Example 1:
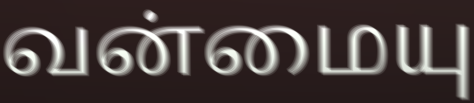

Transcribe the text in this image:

வன்மையு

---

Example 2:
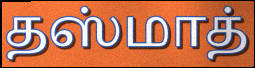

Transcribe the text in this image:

தஸ்மாத்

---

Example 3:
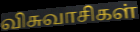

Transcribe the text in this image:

விசுவாசிகள்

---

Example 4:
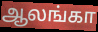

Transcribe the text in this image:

ஆலங்கா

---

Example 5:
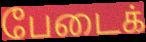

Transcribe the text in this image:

பேடைக்